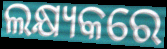
ଲକ୍ଷ୍ୟକରେ